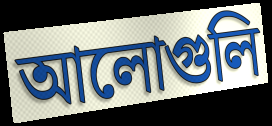
আলোগুলি